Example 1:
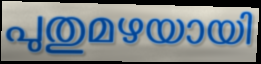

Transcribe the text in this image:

പുതുമഴയായി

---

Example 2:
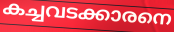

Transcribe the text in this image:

കച്ചവടക്കാരനെ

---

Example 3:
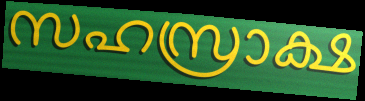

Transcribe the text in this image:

സഹസ്രാക്ഷ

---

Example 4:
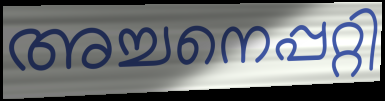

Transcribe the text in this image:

അച്ചനെപ്പറ്റി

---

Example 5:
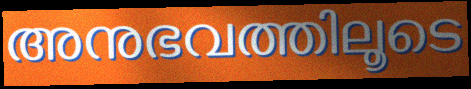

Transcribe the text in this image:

അനുഭവത്തിലൂടെ